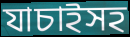
যাচাইসহ